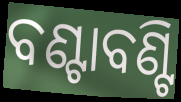
ବଣ୍ଟାବଣ୍ଟି